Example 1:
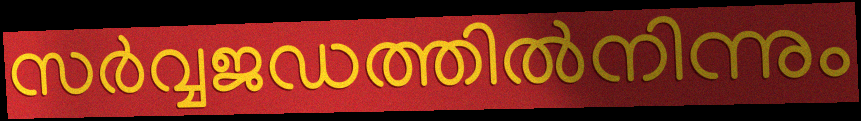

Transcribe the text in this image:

സർവ്വജഡത്തിൽനിന്നും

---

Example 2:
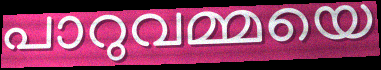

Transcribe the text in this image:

പാറുവമ്മയെ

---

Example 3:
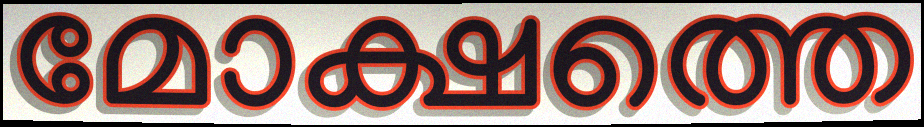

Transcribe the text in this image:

മോക്ഷത്തെ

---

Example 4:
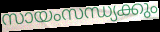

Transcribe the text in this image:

സായംസന്ധ്യക്കും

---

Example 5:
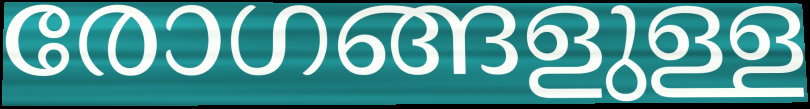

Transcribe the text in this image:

രോഗങ്ങളുള്ള